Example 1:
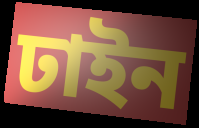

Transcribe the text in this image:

ঢাইন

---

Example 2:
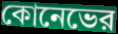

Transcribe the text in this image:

কোনেভের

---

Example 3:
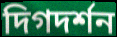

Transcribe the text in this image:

দিগদর্শন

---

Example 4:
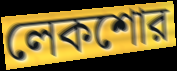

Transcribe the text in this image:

লেকশোর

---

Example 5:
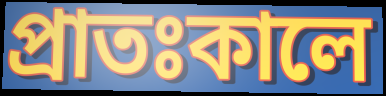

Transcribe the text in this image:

প্রাতঃকালে